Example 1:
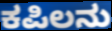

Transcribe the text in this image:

ಕಪಿಲನು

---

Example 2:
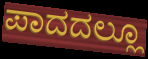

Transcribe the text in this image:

ಪಾದದಲ್ಲೂ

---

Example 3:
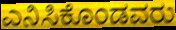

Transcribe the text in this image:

ಎನಿಸಿಕೊಂಡವರು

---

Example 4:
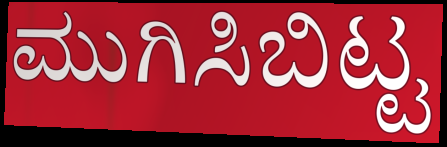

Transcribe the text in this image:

ಮುಗಿಸಿಬಿಟ್ಟ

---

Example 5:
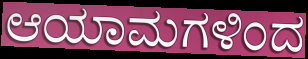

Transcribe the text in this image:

ಆಯಾಮಗಳಿಂದ